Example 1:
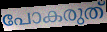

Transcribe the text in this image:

പോകരുത്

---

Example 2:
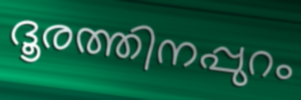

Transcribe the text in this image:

ദൂരത്തിനപ്പുറം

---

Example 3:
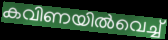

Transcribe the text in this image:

കവിണയിൽവെച്ച്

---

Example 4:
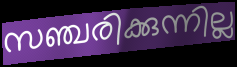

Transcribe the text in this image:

സഞ്ചരിക്കുന്നില്ല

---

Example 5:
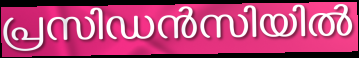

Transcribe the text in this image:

പ്രസിഡൻസിയിൽ